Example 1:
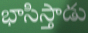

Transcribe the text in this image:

భాసిస్తాడు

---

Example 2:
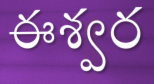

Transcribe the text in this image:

ఈశ్వర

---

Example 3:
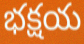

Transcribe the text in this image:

భక్షయ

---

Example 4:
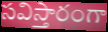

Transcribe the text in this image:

సవిస్తారంగా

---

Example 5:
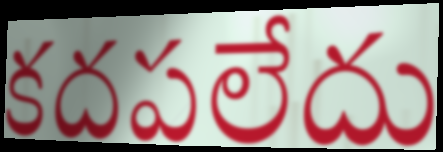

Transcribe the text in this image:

కదపలేదు